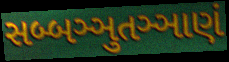
સબ્બઞ્ઞુતઞ્ઞાણં